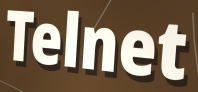
Telnet